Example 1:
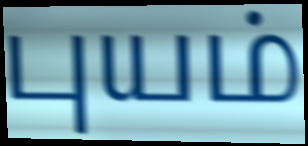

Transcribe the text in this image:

புயம்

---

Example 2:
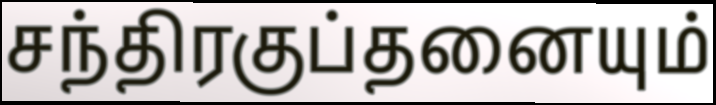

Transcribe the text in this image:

சந்திரகுப்தனையும்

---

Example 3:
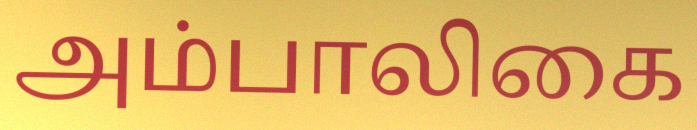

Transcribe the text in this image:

அம்பாலிகை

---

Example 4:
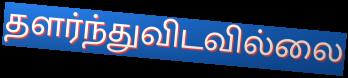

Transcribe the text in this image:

தளர்ந்துவிடவில்லை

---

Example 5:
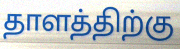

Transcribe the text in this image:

தாளத்திற்கு